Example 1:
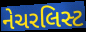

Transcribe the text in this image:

નેચરલિસ્ટ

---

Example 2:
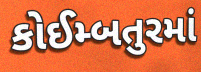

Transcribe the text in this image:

કોઈમ્બતુરમાં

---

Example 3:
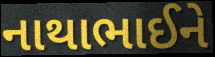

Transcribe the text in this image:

નાથાભાઈને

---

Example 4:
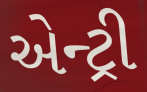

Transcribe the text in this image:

એન્‍ટ્રી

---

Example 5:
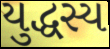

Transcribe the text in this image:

યુદ્ધસ્ય